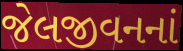
જેલજીવનનાં